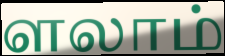
ளலாம்